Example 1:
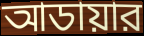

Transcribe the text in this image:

আডায়ার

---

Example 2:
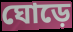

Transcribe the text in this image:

ঘোড়ে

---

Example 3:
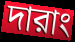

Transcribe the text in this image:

দারাং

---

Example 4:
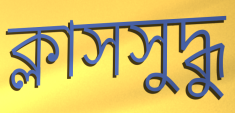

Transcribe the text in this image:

ক্লাসসুদ্ধু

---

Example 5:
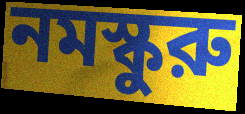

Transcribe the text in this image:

নমস্কুরু